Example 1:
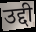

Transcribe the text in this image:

उद्दी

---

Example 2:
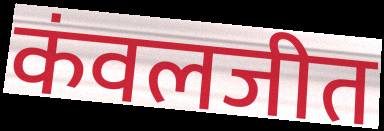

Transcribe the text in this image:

कंवलजीत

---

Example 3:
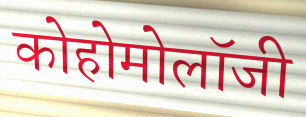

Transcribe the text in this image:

कोहोमोलॉजी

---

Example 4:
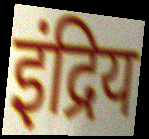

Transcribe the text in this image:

इंद्रिय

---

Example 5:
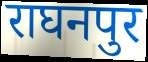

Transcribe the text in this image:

राघनपुर